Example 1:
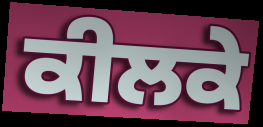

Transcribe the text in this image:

ਕੀਲਕੇ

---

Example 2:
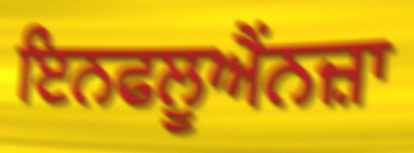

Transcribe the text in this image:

ਇਨਫਲੂਐਂਨਜ਼ਾ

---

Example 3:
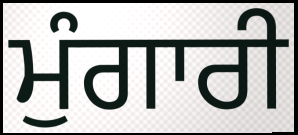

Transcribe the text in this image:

ਮੁੰਗਾਰੀ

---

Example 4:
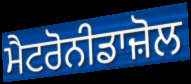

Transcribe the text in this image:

ਮੈਟਰੋਨੀਡਾਜ਼ੋਲ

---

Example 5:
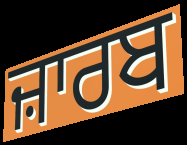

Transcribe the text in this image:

ਜ਼ਾਰਬ